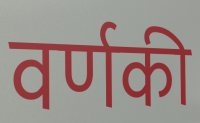
वर्णकी